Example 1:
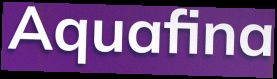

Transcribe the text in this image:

Aquafina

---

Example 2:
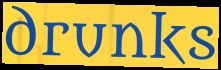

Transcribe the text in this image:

drunks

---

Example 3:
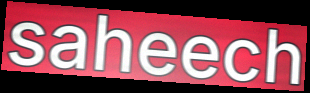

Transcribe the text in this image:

saheech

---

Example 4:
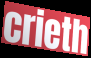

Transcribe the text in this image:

crieth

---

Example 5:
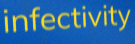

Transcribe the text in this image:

infectivity